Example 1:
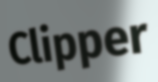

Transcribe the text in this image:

Clipper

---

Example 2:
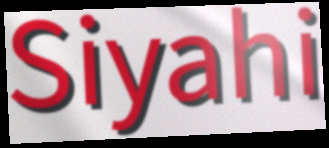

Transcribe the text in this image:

Siyahi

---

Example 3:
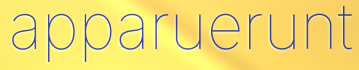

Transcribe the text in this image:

apparuerunt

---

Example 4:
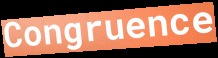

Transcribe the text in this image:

Congruence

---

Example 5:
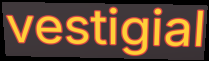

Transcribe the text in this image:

vestigial